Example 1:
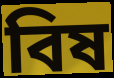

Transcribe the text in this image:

বিষ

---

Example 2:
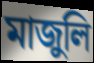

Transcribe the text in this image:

মাজুলি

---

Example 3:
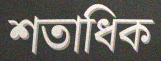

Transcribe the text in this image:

শতাধিক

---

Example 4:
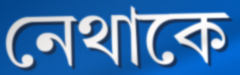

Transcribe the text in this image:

নেথাকে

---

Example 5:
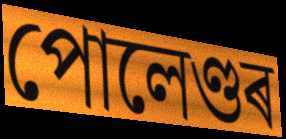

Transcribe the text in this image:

পোলেণ্ডৰ